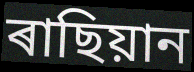
ৰাছিয়ান